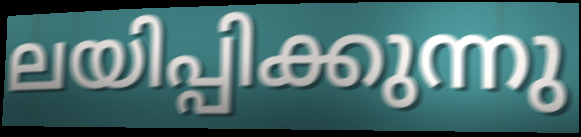
ലയിപ്പിക്കുന്നു